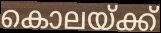
കൊലയ്ക്ക്